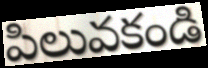
పిలువకండి